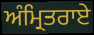
ਅੰਮ੍ਰਿਤਰਾਏ